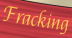
Fracking